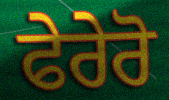
ਫੇਰੇਰੋ